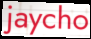
jaycho